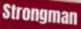
Strongman